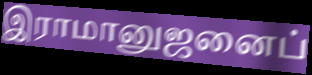
இராமானுஜனைப்